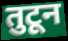
तुटून